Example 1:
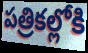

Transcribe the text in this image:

పత్రికల్లోకి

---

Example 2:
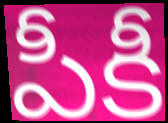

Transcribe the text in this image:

పీకీ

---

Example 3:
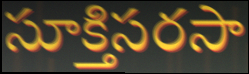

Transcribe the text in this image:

సూక్తిసరసా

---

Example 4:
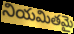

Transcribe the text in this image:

నియమితమై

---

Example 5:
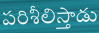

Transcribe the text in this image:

పరిశీలిస్తాడు